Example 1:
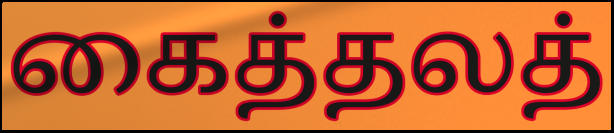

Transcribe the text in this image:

கைத்தலத்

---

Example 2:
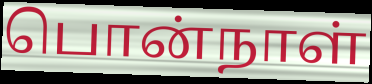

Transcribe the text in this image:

பொன்நாள்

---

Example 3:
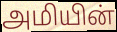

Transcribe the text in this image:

அமியின்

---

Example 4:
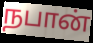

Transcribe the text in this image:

நபான்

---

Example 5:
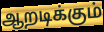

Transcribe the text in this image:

ஆறடிக்கும்